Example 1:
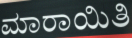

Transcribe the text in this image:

ಮಾರಾಯಿತಿ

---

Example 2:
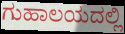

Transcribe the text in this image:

ಗುಹಾಲಯದಲ್ಲಿ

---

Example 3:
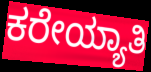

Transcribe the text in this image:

ಕರೇಯ್ಯಾತಿ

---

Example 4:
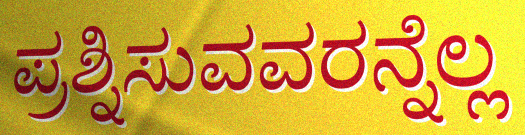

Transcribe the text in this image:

ಪ್ರಶ್ನಿಸುವವರನ್ನೆಲ್ಲ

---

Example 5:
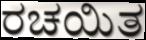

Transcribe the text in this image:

ರಚಯಿತ